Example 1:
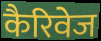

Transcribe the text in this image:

कैरिवेज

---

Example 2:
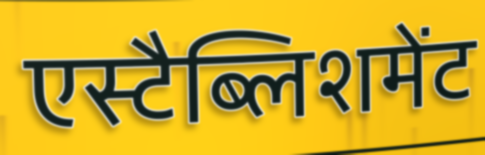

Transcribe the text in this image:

एस्टैब्लिशमेंट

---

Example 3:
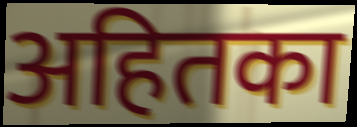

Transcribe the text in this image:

अहितका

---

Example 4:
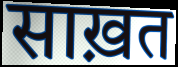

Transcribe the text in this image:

साख़त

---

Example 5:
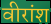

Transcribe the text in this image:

वीरांश